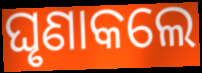
ଘୃଣାକଲେ